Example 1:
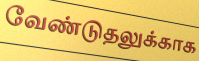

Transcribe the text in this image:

வேண்டுதலுக்காக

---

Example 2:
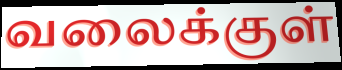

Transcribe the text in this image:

வலைக்குள்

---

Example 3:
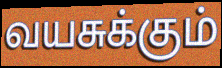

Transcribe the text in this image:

வயசுக்கும்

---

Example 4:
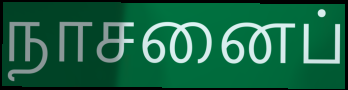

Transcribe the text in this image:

நாசனைப்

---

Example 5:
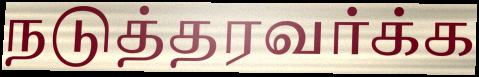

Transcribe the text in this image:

நடுத்தரவர்க்க